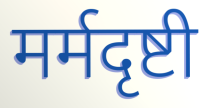
मर्मदृष्टी